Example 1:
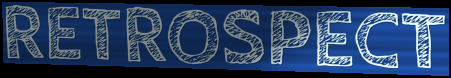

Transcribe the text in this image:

RETROSPECT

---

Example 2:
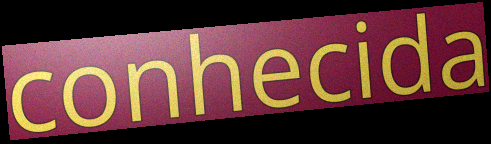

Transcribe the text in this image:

conhecida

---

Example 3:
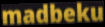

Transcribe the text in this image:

madbeku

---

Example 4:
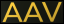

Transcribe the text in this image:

AAV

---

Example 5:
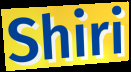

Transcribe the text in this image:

Shiri